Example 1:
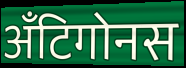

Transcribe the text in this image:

अँटिगोनस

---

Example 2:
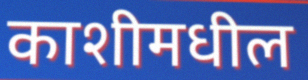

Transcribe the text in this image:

काशीमधील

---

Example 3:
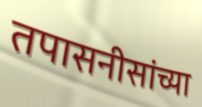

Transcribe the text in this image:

तपासनीसांच्या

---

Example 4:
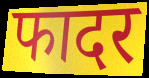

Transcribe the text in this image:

फादर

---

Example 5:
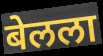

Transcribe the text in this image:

बेलला